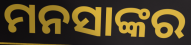
ମନସାଙ୍କର